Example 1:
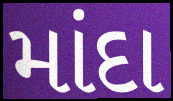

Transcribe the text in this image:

માંદા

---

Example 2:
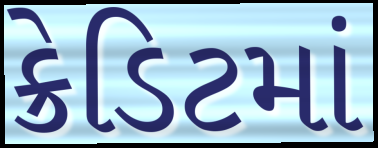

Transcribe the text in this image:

ક્રેડિટમાં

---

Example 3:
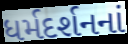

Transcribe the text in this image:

ધર્મદર્શનનાં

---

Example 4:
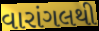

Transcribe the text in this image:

વારાંગલથી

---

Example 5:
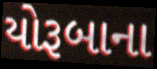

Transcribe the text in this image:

યોરૂબાના